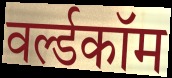
वर्ल्डकॉम